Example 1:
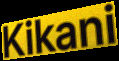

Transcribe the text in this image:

Kikani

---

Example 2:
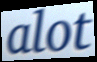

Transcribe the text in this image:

alot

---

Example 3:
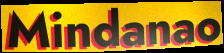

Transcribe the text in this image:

Mindanao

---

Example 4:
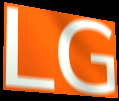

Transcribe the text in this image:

LG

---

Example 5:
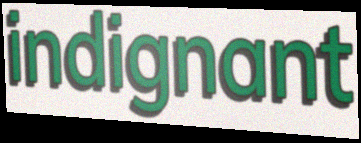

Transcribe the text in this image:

indignant